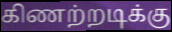
கிணற்றடிக்கு